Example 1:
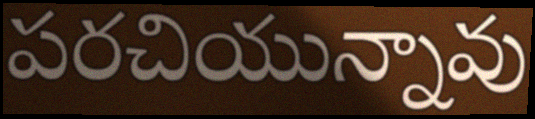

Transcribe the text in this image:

పరచియున్నావు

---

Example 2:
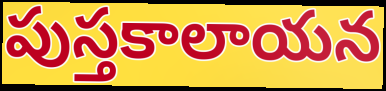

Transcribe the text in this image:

పుస్తకాలాయన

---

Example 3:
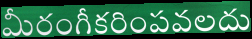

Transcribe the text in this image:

మీరంగీకరింపవలదు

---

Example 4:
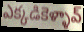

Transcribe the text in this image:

ఎక్కడికెళ్ళావ్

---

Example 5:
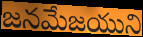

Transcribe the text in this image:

జనమేజయుని